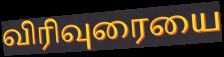
விரிவுரையை